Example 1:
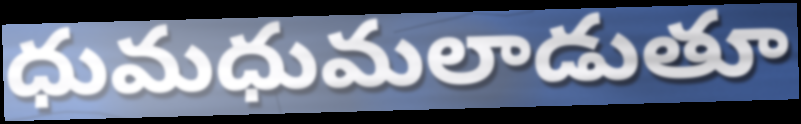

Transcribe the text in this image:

ధుమధుమలాడుతూ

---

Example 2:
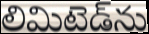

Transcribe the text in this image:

లిమిటెడ్‌ను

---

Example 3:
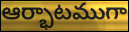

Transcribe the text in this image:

ఆర్భాటముగా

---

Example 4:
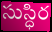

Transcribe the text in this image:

సుస్ధిర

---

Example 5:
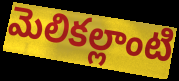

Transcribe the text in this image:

మెలికల్లాంటి